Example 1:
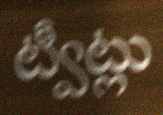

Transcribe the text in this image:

ట్వీట్లు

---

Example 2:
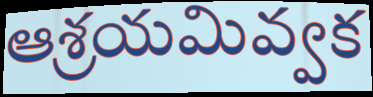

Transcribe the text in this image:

ఆశ్రయమివ్వక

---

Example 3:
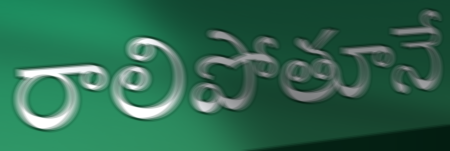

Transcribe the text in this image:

రాలిపోతూనే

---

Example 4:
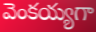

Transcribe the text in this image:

వెంకయ్యగా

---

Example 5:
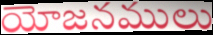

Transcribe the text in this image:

యోజనములు